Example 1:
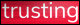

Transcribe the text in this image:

trusting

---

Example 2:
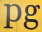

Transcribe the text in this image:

pg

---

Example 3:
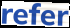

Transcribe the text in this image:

refer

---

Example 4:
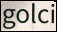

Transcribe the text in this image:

golci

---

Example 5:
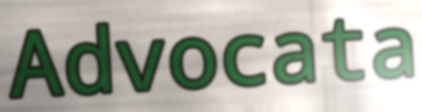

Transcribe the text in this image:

Advocata